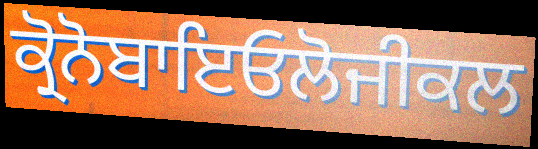
ਕ੍ਰੋਨੋਬਾਇਓਲੋਜੀਕਲ